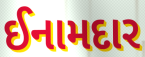
ઈનામદાર